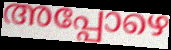
അപ്പോഴെ